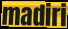
madiri